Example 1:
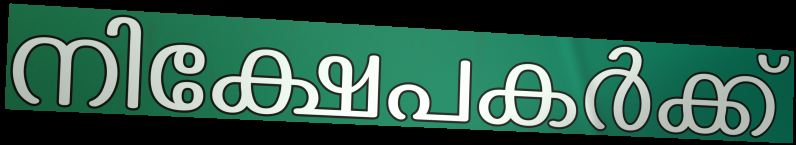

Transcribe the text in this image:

നിക്ഷേപകർക്ക്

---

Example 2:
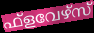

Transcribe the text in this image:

ഫ്ളവേഴ്സ്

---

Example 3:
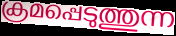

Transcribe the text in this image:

ക്രമപ്പെടുത്തുന്ന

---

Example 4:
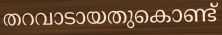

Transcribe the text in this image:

തറവാടായതുകൊണ്ട്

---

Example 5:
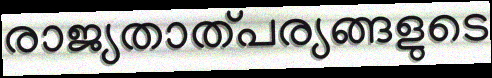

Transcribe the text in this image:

രാജ്യതാത്പര്യങ്ങളുടെ